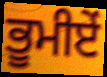
ਭੂਮੀਏਂ